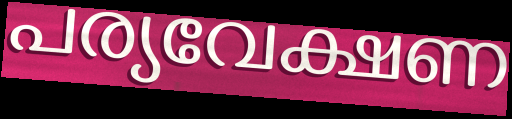
പര്യവേക്ഷണ